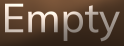
Empty